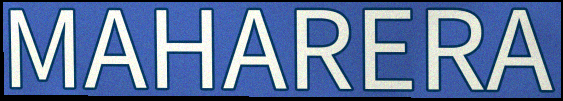
MAHARERA